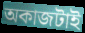
অকাজটাই